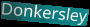
Donkersley